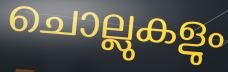
ചൊല്ലുകളും